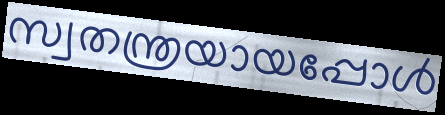
സ്വതന്ത്രയായപ്പോൾ